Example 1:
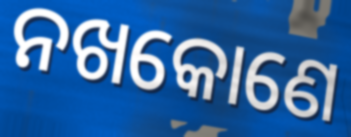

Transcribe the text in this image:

ନଖକୋଣେ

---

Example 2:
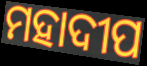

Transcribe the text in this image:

ମହାଦୀପ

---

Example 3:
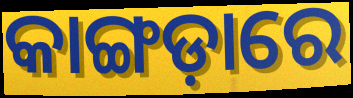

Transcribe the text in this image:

କାଙ୍ଗଡ଼ାରେ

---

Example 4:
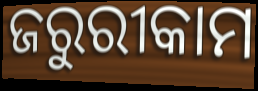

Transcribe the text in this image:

ଜରୁରୀକାମ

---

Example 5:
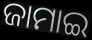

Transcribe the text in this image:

ଜାମାଇ